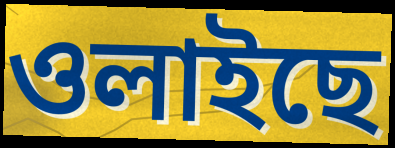
ওলাইছে